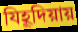
যিহূদিয়ায়